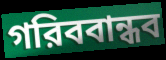
গরিববান্ধব